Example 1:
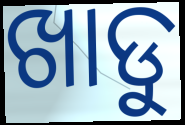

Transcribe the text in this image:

ଖାଡୁ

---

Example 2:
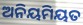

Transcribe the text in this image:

ଅନିୟମିୟତ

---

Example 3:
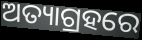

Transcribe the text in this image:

ଅତ୍ୟାଗ୍ରହରେ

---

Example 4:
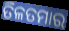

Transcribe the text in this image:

ତିଳତମାର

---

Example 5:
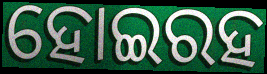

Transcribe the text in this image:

ହୋଇରହ